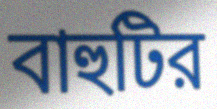
বাহুটির